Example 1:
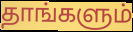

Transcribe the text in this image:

தாங்களும்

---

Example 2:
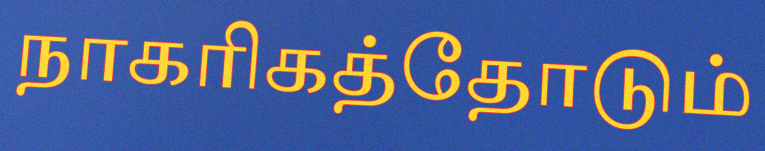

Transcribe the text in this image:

நாகரிகத்தோடும்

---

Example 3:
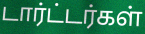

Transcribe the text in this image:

டார்ட்டர்கள்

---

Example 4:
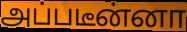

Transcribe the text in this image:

அப்படீன்னா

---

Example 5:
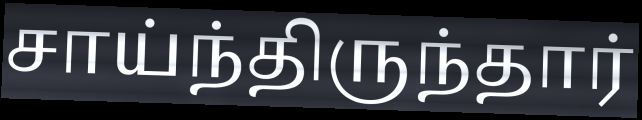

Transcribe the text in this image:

சாய்ந்திருந்தார்